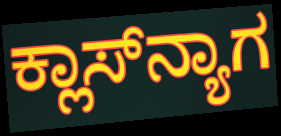
ಕ್ಲಾಸ್‌ನ್ಯಾಗ